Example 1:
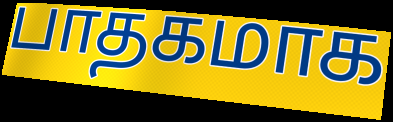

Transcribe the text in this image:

பாதகமாக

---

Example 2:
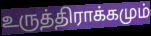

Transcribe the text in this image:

உருத்திராக்கமும்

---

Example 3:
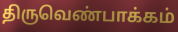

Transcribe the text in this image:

திருவெண்பாக்கம்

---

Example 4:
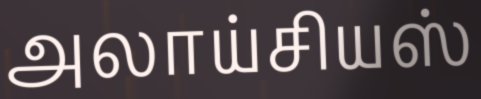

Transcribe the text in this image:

அலாய்சியஸ்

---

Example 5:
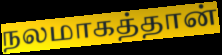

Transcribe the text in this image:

நலமாகத்தான்